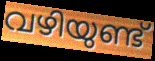
വഴിയുണ്ട്